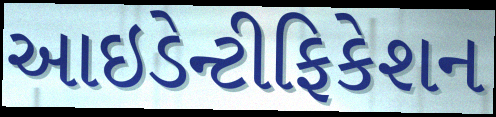
આઇડેન્ટીફિકેશન